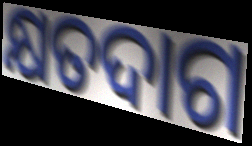
କ୍ଷତଦାଗ